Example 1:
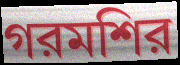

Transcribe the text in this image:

গরমশির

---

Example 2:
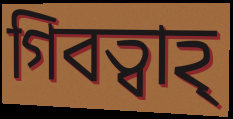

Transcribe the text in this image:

গিবত্বাহ্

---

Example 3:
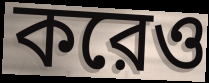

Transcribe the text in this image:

করেও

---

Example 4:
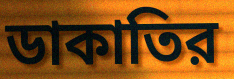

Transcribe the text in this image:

ডাকাতির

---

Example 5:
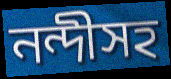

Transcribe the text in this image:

নন্দীসহ